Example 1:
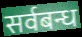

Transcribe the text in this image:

सर्वबन्ध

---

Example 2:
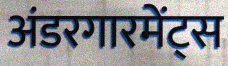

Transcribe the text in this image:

अंडरगारमेंट्स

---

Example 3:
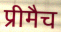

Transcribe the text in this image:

प्रीमैच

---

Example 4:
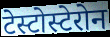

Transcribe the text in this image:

टेस्टोस्टेरोन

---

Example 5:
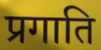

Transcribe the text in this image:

प्रगाति